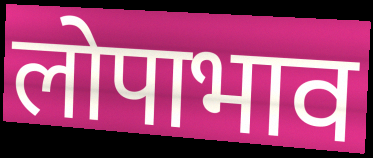
लोपाभाव